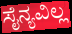
ಸೈನ್ಯವಿಲ್ಲ